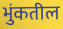
भुंकतील